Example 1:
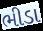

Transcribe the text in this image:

ભીડા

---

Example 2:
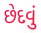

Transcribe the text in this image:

છેદવું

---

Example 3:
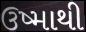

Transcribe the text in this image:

ઉષ્માથી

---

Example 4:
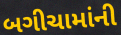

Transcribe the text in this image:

બગીચામાંની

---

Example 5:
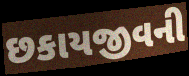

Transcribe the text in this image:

છકાયજીવની